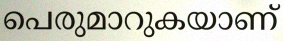
പെരുമാറുകയാണ്